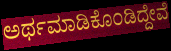
ಅರ್ಥಮಾಡಿಕೊಂಡಿದ್ದೇವೆ